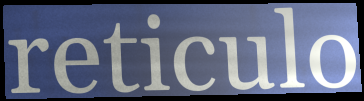
reticulo